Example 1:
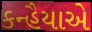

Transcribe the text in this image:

કન્હૈયાએ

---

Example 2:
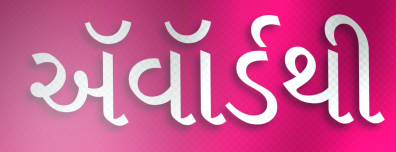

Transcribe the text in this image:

ઍવૉર્ડથી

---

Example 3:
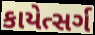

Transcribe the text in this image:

કાયેત્સર્ગ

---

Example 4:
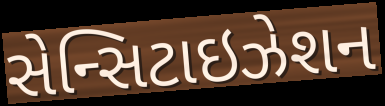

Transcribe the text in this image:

સેન્સિટાઇઝેશન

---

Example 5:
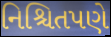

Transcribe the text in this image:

નિશ્ચિતપણે